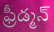
ఫ్రీడ్మన్